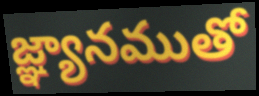
జ్ఞ్యానముతో